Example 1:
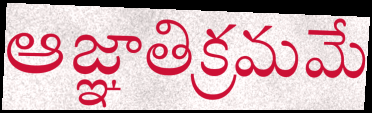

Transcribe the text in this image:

ఆజ్ఞాతిక్రమమే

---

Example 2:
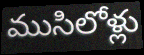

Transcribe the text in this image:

ముసిలోళ్లు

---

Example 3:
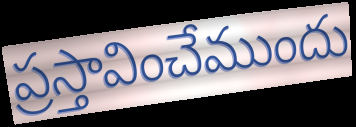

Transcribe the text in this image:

ప్రస్తావించేముందు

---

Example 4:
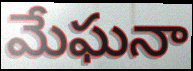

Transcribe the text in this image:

మేఘనా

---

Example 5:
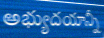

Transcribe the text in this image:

అభ్యుదయాన్నీ